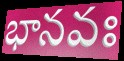
భానవః